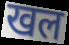
खल